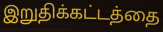
இறுதிக்கட்டத்தை